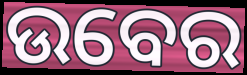
ଉବେର